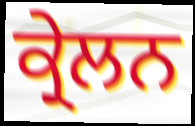
ਕ੍ਰੇਲਨ